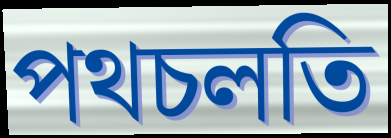
পথচলতি